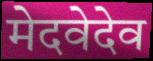
मेदवेदेव